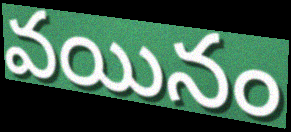
వయినం